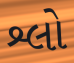
શ્લો